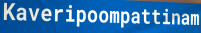
Kaveripoompattinam